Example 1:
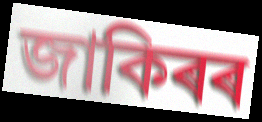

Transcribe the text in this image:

জাকিৰৰ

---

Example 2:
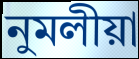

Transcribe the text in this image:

নুমলীয়া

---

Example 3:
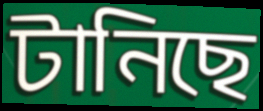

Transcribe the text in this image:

টানিছে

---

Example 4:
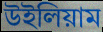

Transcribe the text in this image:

উইলিয়াম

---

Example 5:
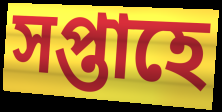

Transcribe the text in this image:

সপ্তাহে